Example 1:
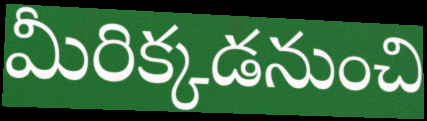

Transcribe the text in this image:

మీరిక్కడనుంచి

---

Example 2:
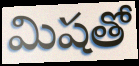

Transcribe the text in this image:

మిషతో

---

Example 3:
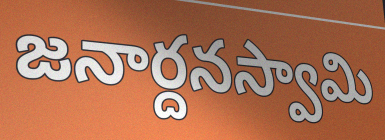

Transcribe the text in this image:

జనార్దనస్వామి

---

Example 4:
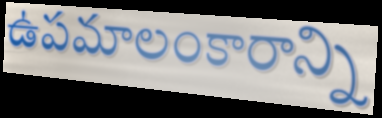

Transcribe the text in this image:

ఉపమాలంకారాన్ని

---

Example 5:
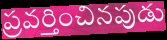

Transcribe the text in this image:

ప్రవర్తించినపుడు